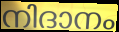
നിദാനം